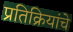
प्रतिक्रियांचे